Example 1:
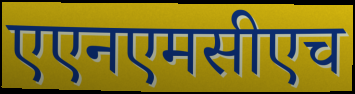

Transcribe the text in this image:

एएनएमसीएच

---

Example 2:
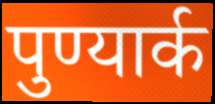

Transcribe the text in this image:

पुण्यार्क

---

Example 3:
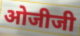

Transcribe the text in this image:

ओजीजी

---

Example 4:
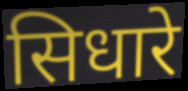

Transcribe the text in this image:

सिधारे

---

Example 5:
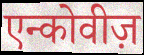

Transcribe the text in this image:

एन्कोवीज़